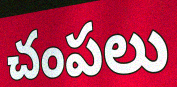
చంపలు